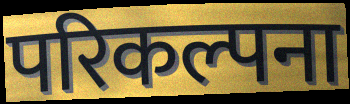
परिकल्पना